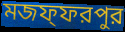
মজফ্ফরপুর